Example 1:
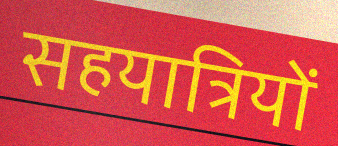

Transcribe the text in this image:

सहयात्रियों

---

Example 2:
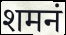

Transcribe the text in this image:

शमनं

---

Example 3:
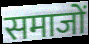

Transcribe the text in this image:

समाजों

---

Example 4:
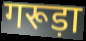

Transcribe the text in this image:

गरूड़ा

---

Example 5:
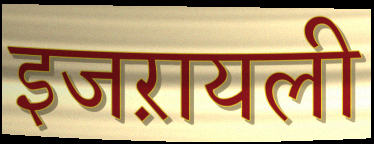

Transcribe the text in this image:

इजऱायली